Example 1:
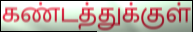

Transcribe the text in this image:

கண்டத்துக்குள்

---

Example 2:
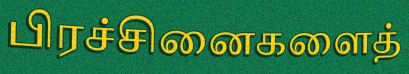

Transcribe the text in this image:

பிரச்சினைகளைத்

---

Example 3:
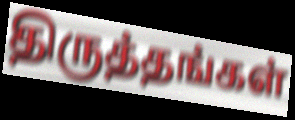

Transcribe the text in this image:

திருத்தங்கள்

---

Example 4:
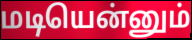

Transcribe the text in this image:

மடியென்னும்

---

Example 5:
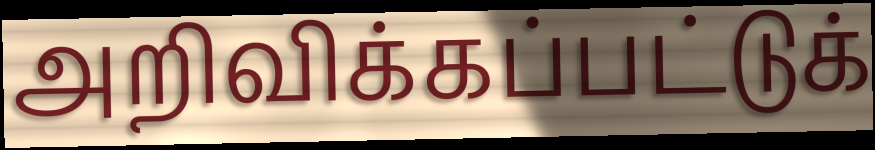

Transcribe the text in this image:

அறிவிக்கப்பட்டுக்